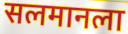
सलमानला